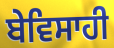
ਬੇਵਿਸਾਹੀ